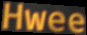
Hwee